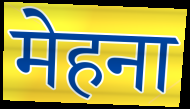
मेहना